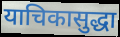
याचिकासुद्धा